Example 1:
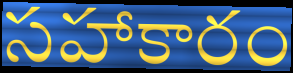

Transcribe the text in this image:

సహాకారం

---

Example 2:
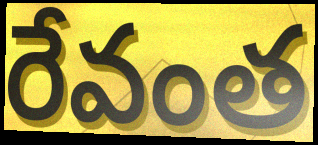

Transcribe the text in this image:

రేవంత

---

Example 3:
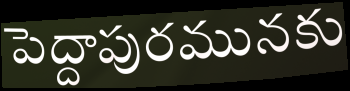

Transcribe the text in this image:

పెద్దాపురమునకు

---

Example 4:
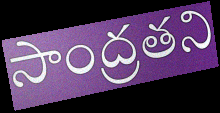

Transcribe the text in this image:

సాంద్రతని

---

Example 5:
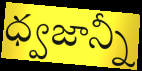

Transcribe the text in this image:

ధ్వజాన్నీ